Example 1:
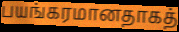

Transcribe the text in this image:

பயங்கரமானதாகத்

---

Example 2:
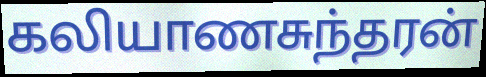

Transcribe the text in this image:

கலியாணசுந்தரன்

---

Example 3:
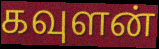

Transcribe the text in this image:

கவுளன்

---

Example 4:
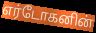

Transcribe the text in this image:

எர்டோகனின்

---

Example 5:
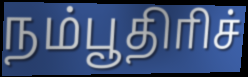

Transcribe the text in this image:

நம்பூதிரிச்